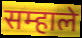
सम्हाले